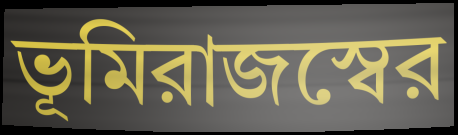
ভূমিরাজস্বের